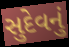
સુદેવનું